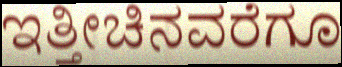
ಇತ್ತೀಚಿನವರೆಗೂ